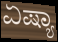
ಏಷ್ಯಾ